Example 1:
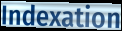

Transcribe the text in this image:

Indexation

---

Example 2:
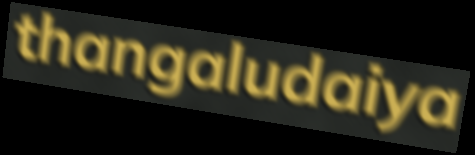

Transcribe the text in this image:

thangaludaiya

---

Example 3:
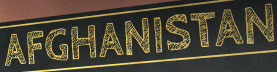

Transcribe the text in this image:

AFGHANISTAN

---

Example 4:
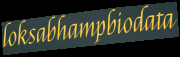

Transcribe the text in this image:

loksabhampbiodata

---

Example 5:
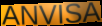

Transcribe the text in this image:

ANVISA